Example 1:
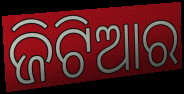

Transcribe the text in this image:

ଜିଟିଆର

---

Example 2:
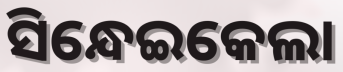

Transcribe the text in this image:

ସିନ୍ଧେଇକେଲା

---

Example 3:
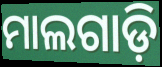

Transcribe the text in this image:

ମାଲଗାଡ଼ି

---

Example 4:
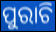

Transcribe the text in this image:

ପୁରାଚି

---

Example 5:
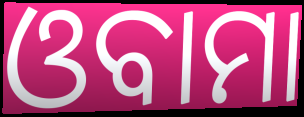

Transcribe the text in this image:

ଓବାମା